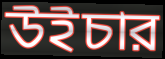
উইচার